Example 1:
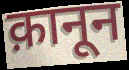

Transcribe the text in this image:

क़ानून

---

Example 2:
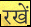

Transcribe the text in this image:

रखें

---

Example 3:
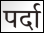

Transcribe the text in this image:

पर्दा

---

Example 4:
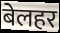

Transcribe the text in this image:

बेलहर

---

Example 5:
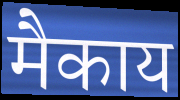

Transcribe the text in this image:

मैकाय